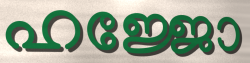
ഹജ്ജോ